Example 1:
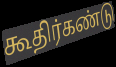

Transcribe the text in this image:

கூதிர்கண்டு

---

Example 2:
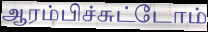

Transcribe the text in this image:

ஆரம்பிச்சுட்டோம்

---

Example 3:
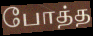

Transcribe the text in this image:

போத்த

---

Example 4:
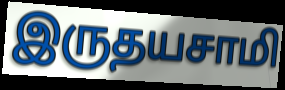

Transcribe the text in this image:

இருதயசாமி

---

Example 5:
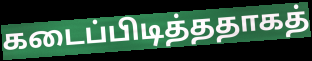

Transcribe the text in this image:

கடைப்பிடித்ததாகத்